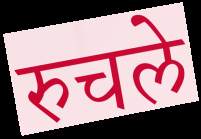
रुचले